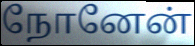
நோனேன்